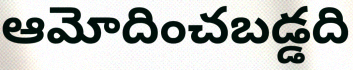
ఆమోదించబడ్డది